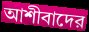
আশীবাদের